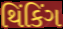
થિંકિંગ